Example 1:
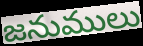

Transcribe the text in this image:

జనుములు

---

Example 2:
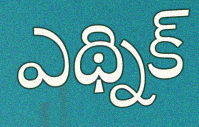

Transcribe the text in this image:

ఎథ్నిక్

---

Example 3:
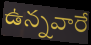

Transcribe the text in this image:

ఉన్నవారే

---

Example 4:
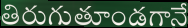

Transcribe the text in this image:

తిరుగుతూండగానే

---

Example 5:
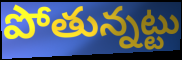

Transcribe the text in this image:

పోతున్నట్టు